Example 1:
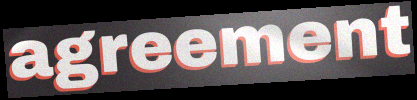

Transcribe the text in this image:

agreement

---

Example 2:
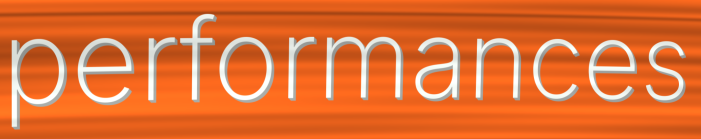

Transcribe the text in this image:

performances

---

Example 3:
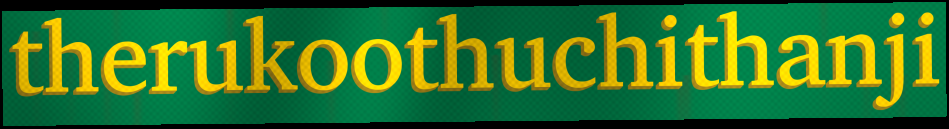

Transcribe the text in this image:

therukoothuchithanji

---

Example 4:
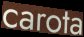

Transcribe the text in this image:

carota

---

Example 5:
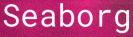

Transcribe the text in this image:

Seaborg